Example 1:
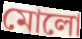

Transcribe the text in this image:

মোলো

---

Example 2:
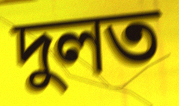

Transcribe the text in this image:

দুলত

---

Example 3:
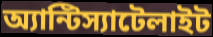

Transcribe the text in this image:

অ্যান্টিস্যাটেলাইট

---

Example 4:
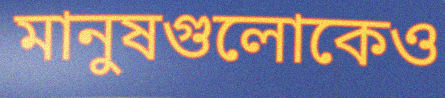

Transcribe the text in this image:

মানুষগুলোকেও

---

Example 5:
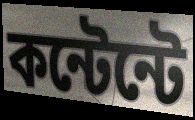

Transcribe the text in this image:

কন্টেন্টে